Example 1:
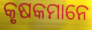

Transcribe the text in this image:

କୃଷକମାନେ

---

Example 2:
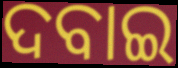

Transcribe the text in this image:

ଦବାଇ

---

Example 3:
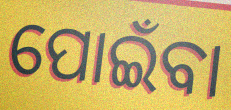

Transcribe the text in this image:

ପୋଇଁବା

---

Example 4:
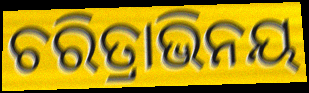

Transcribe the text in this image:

ଚରିତ୍ରାଭିନୟ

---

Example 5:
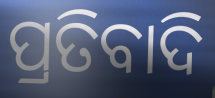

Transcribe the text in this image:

ପ୍ରତିବାଦି